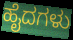
ಹೈದಗಳು